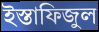
ইস্তাফিজুল